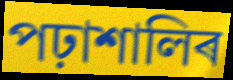
পঢ়াশালিৰ